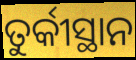
ତୁର୍କୀସ୍ଥାନ